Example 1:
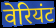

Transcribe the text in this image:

वेरियंट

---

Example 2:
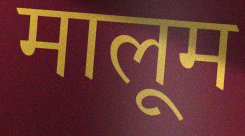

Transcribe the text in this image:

मालूम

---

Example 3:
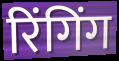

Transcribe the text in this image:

रिंगिंग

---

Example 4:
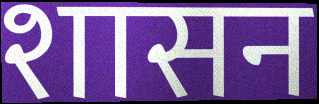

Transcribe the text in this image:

शासन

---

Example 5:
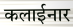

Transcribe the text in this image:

कलाईनार